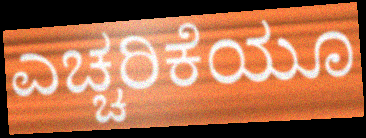
ಎಚ್ಚರಿಕೆಯೂ